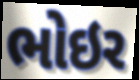
ભોઇર